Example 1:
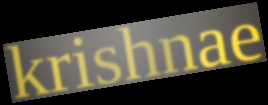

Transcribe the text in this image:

krishnae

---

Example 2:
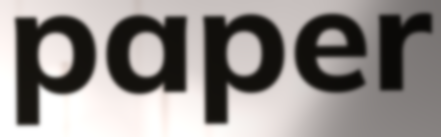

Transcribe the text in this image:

paper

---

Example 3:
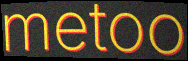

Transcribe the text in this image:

metoo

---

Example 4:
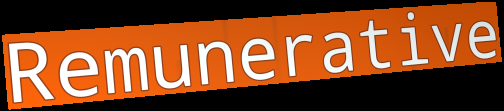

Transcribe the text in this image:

Remunerative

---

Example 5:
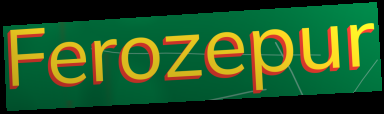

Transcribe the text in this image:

Ferozepur